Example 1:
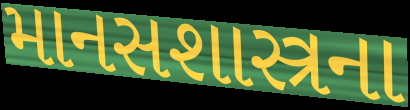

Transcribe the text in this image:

માનસશાસ્ત્રના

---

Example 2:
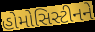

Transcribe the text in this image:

હોમોસિસ્ટીનને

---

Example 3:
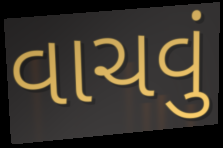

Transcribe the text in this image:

વાચવું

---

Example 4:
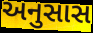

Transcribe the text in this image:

અનુસાસ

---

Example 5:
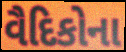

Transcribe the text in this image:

વૈદિકોના